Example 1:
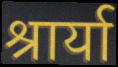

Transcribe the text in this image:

श्रार्या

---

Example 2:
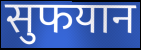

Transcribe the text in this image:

सुफयान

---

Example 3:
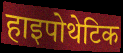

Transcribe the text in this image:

हाइपोथेटिक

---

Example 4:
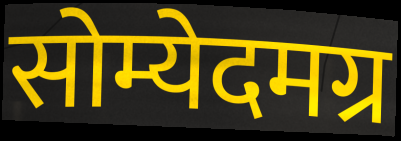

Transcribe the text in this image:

सोम्येदमग्र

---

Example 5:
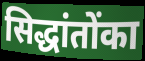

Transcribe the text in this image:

सिद्धांतोंका